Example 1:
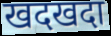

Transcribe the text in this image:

खदखदा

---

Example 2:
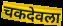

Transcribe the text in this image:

चकदेवला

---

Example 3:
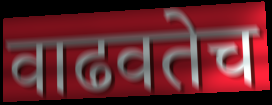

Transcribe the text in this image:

वाढवतेच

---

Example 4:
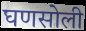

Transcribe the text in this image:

घणसोली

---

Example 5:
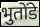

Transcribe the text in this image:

भुतोंडे